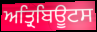
ਅਤ੍ਰਿਬਿਊਟਸ